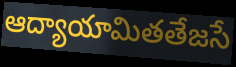
ఆద్యాయామితతేజసే